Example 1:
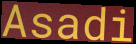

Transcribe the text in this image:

Asadi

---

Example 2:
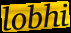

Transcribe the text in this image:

lobhi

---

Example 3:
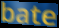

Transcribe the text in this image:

bate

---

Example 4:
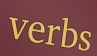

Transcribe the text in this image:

verbs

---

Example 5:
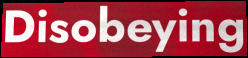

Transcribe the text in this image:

Disobeying